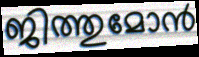
ജിത്തുമോൻ